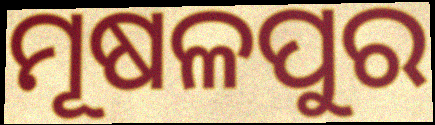
ମୂଷଳପୁର